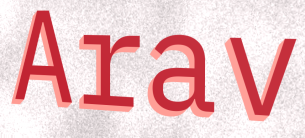
Arav